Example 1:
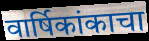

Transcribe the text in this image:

वार्षिकांकाचा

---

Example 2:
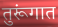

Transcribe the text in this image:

तुरूंगात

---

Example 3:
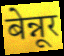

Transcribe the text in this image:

बेन्नूर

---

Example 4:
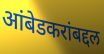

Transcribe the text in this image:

आंबेडकरांबद्दल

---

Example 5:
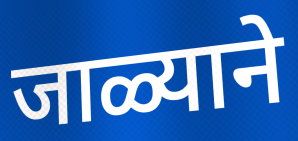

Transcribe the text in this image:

जाळ्याने